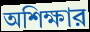
অশিক্ষার